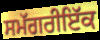
ਸਮੱਗਰੀਇੱਕ